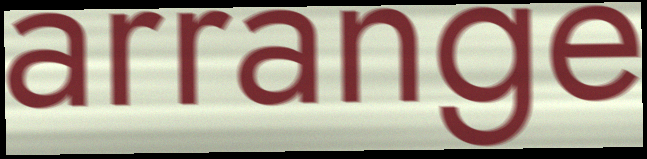
arrange